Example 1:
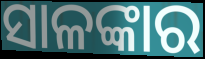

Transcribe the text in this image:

ସାଳଙ୍କାର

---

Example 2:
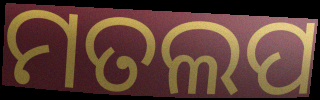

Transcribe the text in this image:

ମତଲପ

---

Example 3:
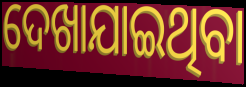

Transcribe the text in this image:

ଦେଖାଯାଇଥିବା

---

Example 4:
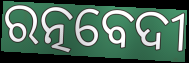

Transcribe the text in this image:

ରତ୍ନବେଦୀ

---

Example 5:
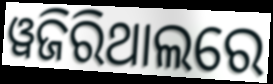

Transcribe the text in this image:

ୱଜିରିଥାଲରେ